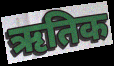
ऋतिक